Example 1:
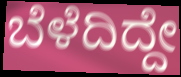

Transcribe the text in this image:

ಬೆಳೆದಿದ್ದೇ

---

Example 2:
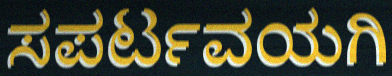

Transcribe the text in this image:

ಸಪರ್ಟವಯಗಿ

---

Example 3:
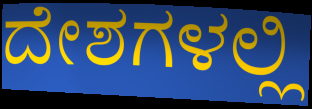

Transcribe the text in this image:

ದೇಶಗಳಲ್ಲಿ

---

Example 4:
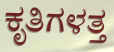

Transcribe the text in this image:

ಕೃತಿಗಳತ್ತ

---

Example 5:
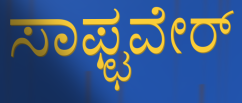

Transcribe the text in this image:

ಸಾಫ್ಟವೇರ್